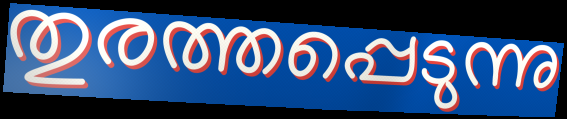
തുരത്തപ്പെടുന്നു